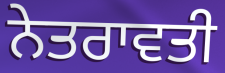
ਨੇਤਰਾਵਤੀ